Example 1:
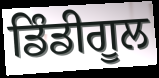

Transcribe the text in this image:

ਡਿੰਡੀਗੂਲ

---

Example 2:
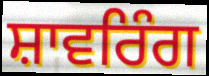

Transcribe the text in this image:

ਸ਼ਾਵਰਿੰਗ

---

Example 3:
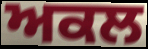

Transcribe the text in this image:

ਅਕਲ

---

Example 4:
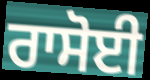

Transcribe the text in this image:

ਰਾਸੋਈ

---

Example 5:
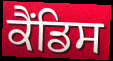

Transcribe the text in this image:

ਕੈਂਡਿਸ